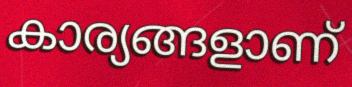
കാര്യങ്ങളാണ്